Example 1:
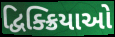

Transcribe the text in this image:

દ્વિક્ક્રિયાઓ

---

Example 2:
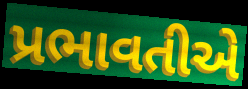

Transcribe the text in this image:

પ્રભાવતીએ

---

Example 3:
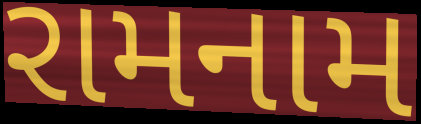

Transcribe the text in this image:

રામનામ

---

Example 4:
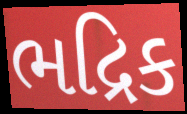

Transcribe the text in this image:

ભદ્રિક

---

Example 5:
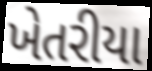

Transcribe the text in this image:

ખેતરીયા